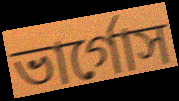
ভার্গোস